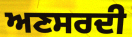
ਅਣਸਰਦੀ